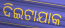
ଦିଇଟାଯାକ